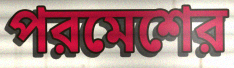
পরমেশের